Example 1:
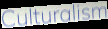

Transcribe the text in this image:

Culturalism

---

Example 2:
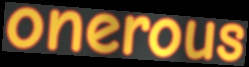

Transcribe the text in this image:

onerous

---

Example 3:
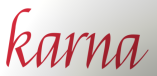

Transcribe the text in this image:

karna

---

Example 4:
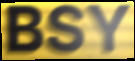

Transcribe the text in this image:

BSY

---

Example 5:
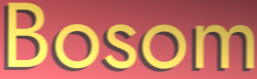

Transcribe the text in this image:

Bosom